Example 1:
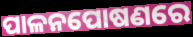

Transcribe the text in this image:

ପାଳନପୋଷଣରେ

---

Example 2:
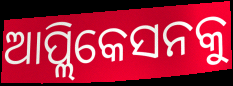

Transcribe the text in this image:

ଆପ୍ଲିକେସନକୁ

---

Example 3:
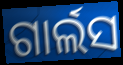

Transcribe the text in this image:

ଗାର୍ଲସ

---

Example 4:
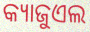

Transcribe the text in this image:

କ୍ୟାଜୁଏଲ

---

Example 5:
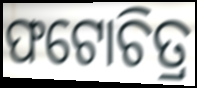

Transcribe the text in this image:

ଫଟୋଚିତ୍ର